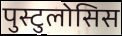
पुस्टुलोसिस